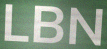
LBN